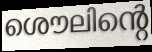
ശൌലിന്റെ